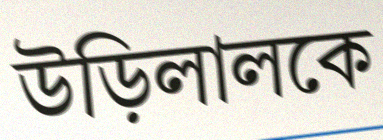
উড়িলালকে